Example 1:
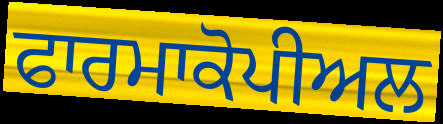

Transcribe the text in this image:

ਫਾਰਮਾਕੋਪੀਅਲ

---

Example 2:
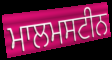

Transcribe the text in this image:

ਮਾਲਮਸਟੀਨ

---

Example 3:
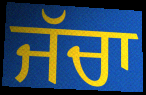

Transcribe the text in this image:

ਜੱਚਾ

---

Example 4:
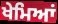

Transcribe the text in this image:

ਖੇਮਿਆਂ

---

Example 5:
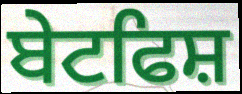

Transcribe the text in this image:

ਬੇਟਫਿਸ਼